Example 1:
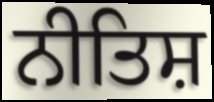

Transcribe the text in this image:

ਨੀਤਿਸ਼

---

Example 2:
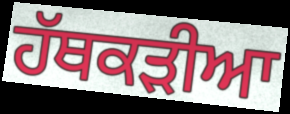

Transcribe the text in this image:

ਹੱਥਕੜੀਆ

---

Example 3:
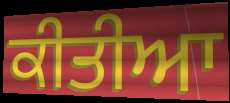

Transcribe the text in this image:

ਕੀਤੀਆ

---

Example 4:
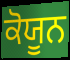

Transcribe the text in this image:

ਕੋਯੂਨ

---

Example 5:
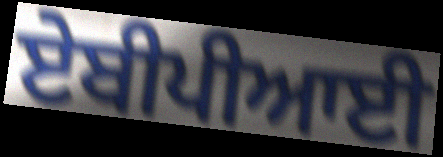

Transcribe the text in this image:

ਏਬੀਪੀਆਈ